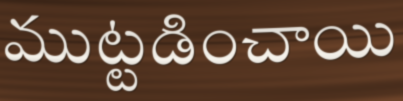
ముట్టడించాయి